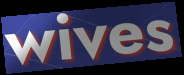
wives